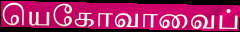
யெகோவாவைப்